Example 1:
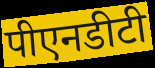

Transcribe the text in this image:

पीएनडीटी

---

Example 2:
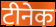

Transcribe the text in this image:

टीनेक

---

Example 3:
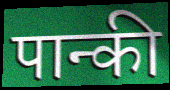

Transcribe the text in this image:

पान्की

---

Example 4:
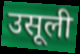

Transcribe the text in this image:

उसूली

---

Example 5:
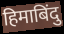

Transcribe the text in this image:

हिमाबिंदु